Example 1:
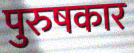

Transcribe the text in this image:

पुरुषकार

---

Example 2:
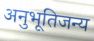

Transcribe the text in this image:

अनुभूतिजन्य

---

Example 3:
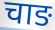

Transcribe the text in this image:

चाङ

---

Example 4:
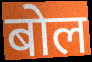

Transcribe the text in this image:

बोल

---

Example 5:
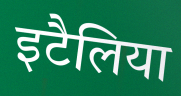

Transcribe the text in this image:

इटैलिया